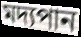
মদ্যপান